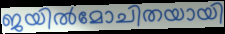
ജയിൽമോചിതയായി